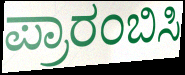
ಪ್ರಾರಂಬಿಸಿ